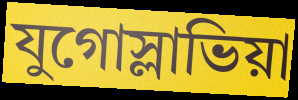
যুগোস্লাভিয়া